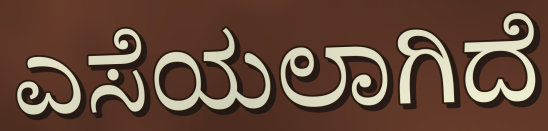
ಎಸೆಯಲಾಗಿದೆ